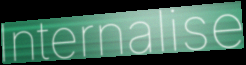
Internalise